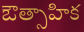
ఔత్సాహిక